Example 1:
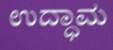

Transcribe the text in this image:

ಉದ್ಧಾಮ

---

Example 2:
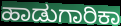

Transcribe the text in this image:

ಹಾಡುಗಾರಿಕಾ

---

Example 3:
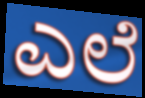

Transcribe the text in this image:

ಎಲೆ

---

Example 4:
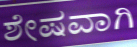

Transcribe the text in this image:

ಶೇಷವಾಗಿ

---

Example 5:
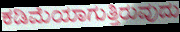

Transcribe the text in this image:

ಕಡಿಮೆಯಾಗುತ್ತಿರುವುದು